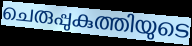
ചെരുപ്പുകുത്തിയുടെ